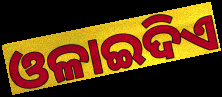
ଓଳାଇଦିଏ